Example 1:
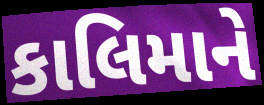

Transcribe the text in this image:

કાલિમાને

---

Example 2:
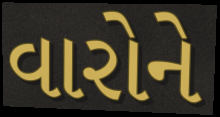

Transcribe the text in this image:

વારોને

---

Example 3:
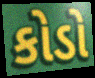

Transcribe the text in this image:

કોડો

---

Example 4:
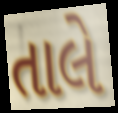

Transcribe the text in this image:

તાલે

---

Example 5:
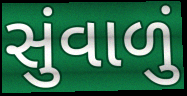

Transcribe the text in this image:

સુંવાળું